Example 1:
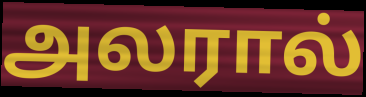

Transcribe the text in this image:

அலரால்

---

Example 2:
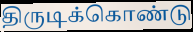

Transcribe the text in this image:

திருடிக்கொண்டு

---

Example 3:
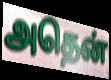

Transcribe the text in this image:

அதென்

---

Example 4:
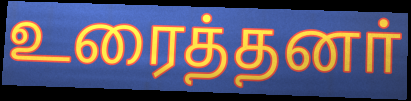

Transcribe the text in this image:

உரைத்தனர்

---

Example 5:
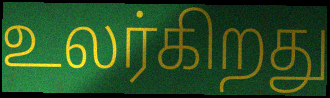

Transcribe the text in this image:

உலர்கிறது